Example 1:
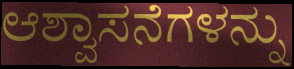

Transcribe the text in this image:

ಆಶ್ವಾಸನೆಗಳನ್ನು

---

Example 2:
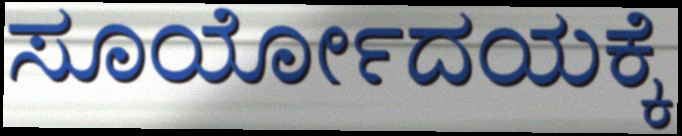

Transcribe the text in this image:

ಸೂರ್ಯೋದಯಕ್ಕೆ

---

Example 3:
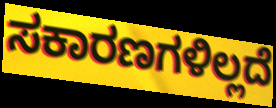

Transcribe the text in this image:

ಸಕಾರಣಗಳಿಲ್ಲದೆ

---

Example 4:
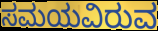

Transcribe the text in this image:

ಸಮಯವಿರುವ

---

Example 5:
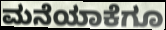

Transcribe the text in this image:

ಮನೆಯಾಕೆಗೂ